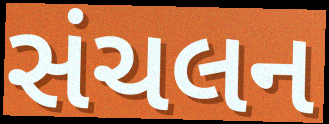
સંચલન